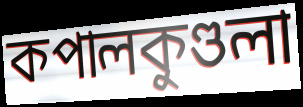
কপালকুণ্ডলা